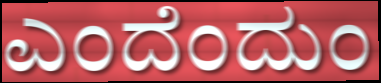
ಎಂದೆಂದುಂ